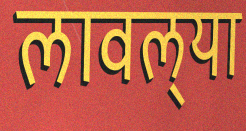
लावल्या